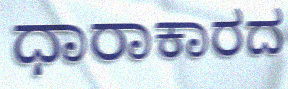
ಧಾರಾಕಾರದ